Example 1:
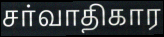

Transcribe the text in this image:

சர்வாதிகார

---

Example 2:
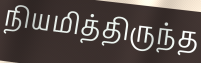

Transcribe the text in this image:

நியமித்திருந்த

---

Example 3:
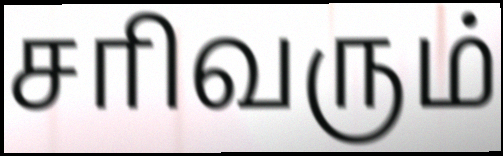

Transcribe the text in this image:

சரிவரும்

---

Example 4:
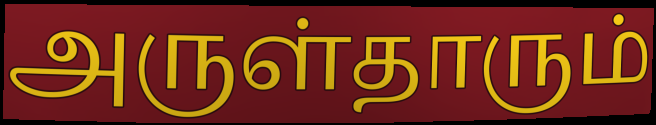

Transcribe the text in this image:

அருள்தாரும்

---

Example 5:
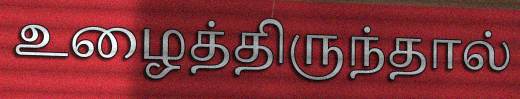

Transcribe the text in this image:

உழைத்திருந்தால்